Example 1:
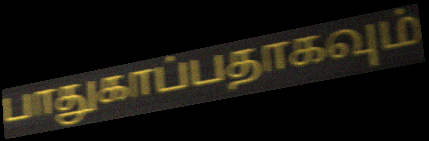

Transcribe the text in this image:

பாதுகாப்பதாகவும்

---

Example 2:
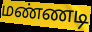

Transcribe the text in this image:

மண்ணடி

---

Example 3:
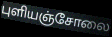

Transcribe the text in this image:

புளியஞ்சோலை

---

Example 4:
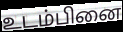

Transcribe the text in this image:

உடம்பினை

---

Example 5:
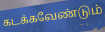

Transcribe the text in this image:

கடக்கவேண்டும்